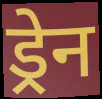
ड्रेन